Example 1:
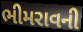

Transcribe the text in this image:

ભીમરાવની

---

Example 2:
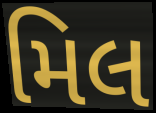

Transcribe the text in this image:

મિલ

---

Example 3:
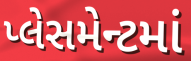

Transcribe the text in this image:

પ્લેસમેન્ટમાં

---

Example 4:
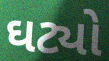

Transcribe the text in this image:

ઘટ્યો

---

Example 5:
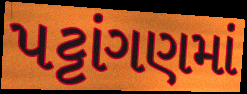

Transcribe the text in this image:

પટ્ટાંગણમાં